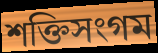
শক্তিসংগম